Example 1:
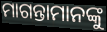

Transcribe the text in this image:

ମାଗନ୍ତାମାନଙ୍କୁ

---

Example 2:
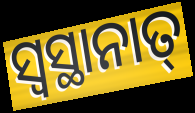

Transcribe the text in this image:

ସ୍ଵସ୍ଥାନାତ୍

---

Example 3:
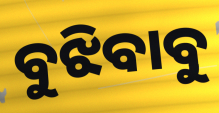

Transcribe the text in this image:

ବୁଝିବାବୁ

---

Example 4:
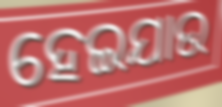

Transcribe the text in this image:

ହେଇଯାଉ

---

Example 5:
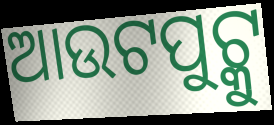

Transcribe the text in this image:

ଆଉଟପୁଟ୍କୁ